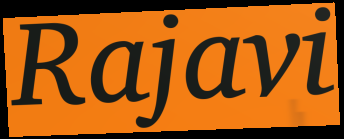
Rajavi